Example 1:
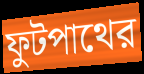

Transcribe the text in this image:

ফুটপাথের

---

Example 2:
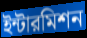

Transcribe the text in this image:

ইন্টারমিশন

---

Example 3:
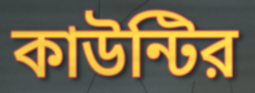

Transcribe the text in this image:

কাউন্টির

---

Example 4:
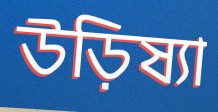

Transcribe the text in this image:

উড়িষ্যা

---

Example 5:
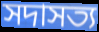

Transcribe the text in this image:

সদাসত্য